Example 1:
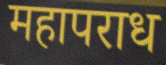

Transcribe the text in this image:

महापराध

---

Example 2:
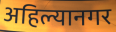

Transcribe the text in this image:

अहिल्यानगर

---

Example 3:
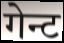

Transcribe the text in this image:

गेन्ट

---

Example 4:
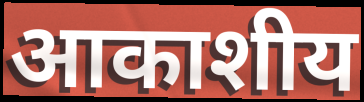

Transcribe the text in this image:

आकाशीय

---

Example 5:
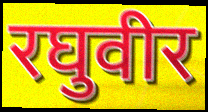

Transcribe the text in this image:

रघुवीर